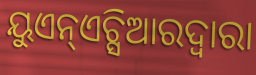
ୟୁଏନ୍ଏଚ୍ସିଆରଦ୍ୱାରା